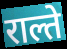
राल्ते